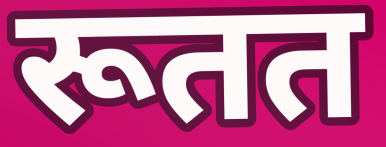
रूतत